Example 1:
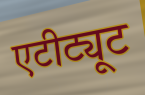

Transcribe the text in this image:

एटीट्यूट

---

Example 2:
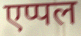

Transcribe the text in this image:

एप्पल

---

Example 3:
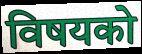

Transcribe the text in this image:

विषयको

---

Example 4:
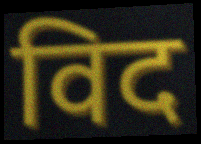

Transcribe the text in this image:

विद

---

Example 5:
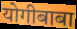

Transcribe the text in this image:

योगीबाबा